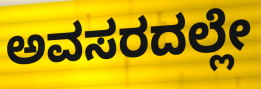
ಅವಸರದಲ್ಲೇ